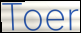
Toer